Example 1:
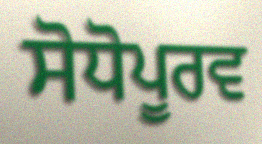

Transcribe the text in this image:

ਸੋਧੋਪੂਰਵ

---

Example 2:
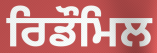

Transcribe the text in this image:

ਰਿਡੌਮਿਲ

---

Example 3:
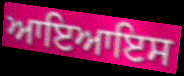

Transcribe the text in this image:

ਆਇਆਇਸ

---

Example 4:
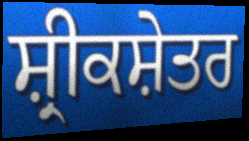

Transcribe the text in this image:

ਸ਼੍ਰੀਕਸ਼ੇਤਰ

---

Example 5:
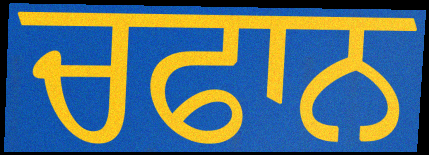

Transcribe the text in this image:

ਚਫਾਨ